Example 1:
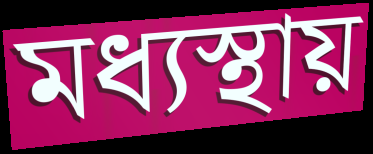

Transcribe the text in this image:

মধ্যস্থায়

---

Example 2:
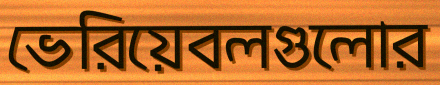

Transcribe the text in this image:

ভেরিয়েবলগুলোর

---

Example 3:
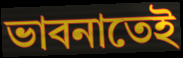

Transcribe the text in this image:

ভাবনাতেই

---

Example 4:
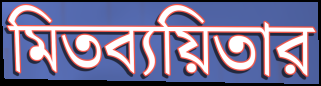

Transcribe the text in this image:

মিতব্যয়িতার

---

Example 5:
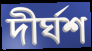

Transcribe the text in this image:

দীর্ঘশ